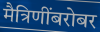
मैत्रिणींबरोबर